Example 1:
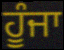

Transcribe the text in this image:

ਹੂੰਜਾ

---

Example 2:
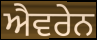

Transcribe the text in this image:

ਐਵਰੇਨ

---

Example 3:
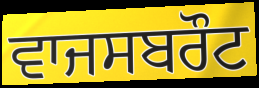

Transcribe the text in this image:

ਵਾਜਸਬਰੌਟ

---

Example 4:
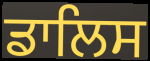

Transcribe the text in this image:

ਡਾਲਿਸ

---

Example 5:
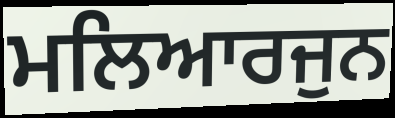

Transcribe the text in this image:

ਮਲਿਆਰਜੁਨ